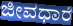
ಜೀವಧಾರೆ